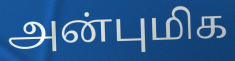
அன்புமிக